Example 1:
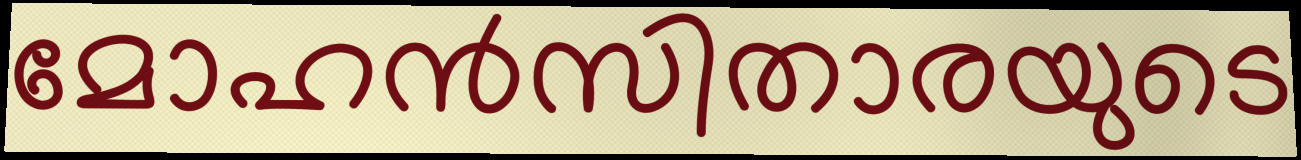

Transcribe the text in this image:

മോഹൻസിതാരയുടെ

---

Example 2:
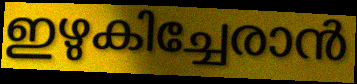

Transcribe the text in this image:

ഇഴുകിച്ചേരാൻ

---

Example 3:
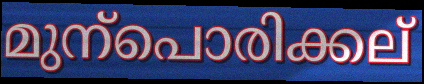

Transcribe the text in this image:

മുന്പൊരിക്കല്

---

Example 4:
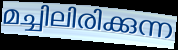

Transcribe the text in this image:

മച്ചിലിരിക്കുന്ന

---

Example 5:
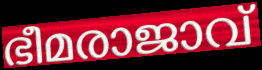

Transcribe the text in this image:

ഭീമരാജാവ്